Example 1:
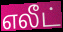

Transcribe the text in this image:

எலீட்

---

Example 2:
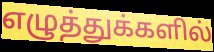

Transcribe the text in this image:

எழுத்துக்களில்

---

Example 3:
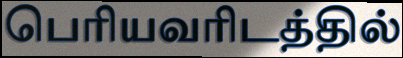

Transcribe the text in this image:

பெரியவரிடத்தில்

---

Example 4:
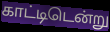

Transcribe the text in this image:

காட்டிடென்று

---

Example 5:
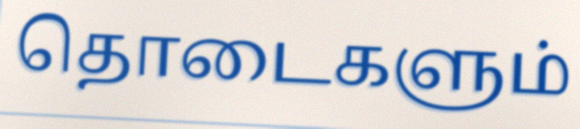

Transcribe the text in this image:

தொடைகளும்